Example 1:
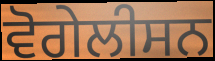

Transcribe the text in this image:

ਵੋਗੇਲੀਸਨ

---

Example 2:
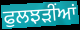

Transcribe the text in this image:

ਫੁਲਝੜੀਂਆਂ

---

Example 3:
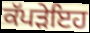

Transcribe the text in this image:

ਕੱਪੜੇਇਹ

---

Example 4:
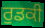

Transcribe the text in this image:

ਰੁਡਕੀ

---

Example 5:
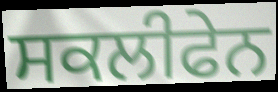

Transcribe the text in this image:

ਸਕਲੀਫੇਨ